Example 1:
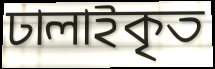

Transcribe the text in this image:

ঢালাইকৃত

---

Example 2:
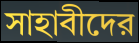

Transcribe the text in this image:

সাহাবীদের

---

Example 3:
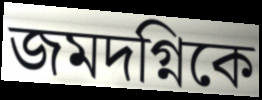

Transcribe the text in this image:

জমদগ্নিকে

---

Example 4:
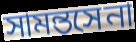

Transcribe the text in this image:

সামন্তসেনা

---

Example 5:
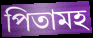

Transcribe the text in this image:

পিতামহ